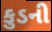
કુડની